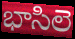
భాసిలె